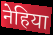
नेहिया